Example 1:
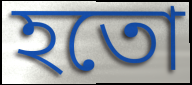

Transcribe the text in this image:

হতো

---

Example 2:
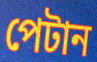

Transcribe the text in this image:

পেটান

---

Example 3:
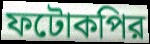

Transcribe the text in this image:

ফটোকপির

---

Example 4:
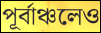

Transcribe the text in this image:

পূর্বাঞ্চলেও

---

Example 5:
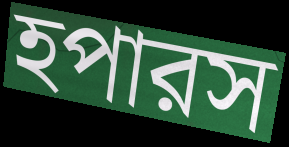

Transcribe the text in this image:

হপারস